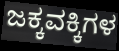
ಜಕ್ಕವಕ್ಕಿಗಳ